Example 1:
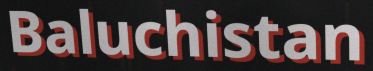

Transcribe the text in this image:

Baluchistan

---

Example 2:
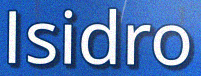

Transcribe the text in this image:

Isidro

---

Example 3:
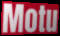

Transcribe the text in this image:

Motu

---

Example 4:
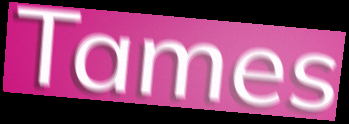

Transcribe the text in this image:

Tames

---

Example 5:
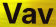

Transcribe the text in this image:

Vav